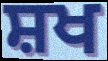
ਸ਼ਖ